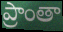
ప్రాంతా